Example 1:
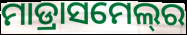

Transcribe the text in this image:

ମାଡ୍ରାସମେଲ୍‍ର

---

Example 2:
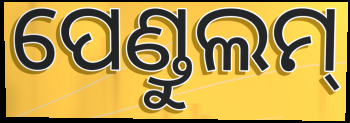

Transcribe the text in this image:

ପେଣ୍ଡୁଲମ୍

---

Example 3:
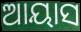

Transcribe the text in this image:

ଆୟାସ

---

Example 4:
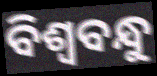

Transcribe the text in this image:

ବିଶ୍ୱବନ୍ଧୁ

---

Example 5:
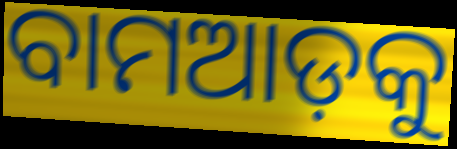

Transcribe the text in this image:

ବାମଆଡ଼କୁ